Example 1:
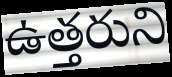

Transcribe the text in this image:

ఉత్తరుని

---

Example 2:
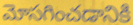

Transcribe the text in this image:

మోసగించడానికి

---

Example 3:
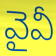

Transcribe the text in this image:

వైవీ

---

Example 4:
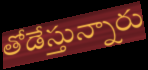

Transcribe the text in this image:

తోడేస్తున్నారు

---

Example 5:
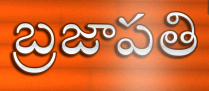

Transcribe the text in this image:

బ్రజాపతి